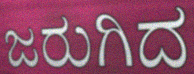
ಜರುಗಿದ